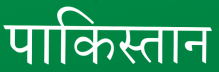
पाकिस्तान